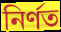
নির্ণত